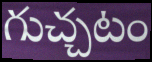
గుచ్చటం